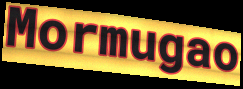
Mormugao